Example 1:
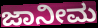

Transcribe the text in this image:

ಜಾನೀಮ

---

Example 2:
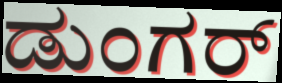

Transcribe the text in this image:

ಡುಂಗರ್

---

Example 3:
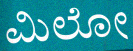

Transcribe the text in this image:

ಮಿಲೋ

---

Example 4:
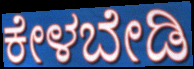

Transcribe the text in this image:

ಕೇಳಬೇಡಿ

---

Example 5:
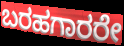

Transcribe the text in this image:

ಬರಹಗಾರರೇ